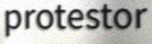
protestor